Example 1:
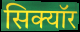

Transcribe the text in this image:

सिक्यॉर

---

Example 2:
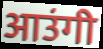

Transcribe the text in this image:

आउंगी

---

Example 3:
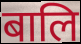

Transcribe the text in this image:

बालि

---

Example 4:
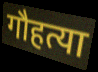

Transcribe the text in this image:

गौहत्या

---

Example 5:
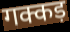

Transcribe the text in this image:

गक्कड़